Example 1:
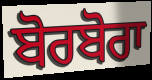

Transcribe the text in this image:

ਬੋਰਬੋਰਾ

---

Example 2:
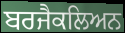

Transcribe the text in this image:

ਬਰਜੈਕਲਿਅਨ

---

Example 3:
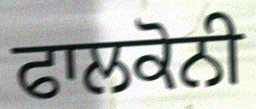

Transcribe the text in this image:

ਫਾਲਕੋਨੀ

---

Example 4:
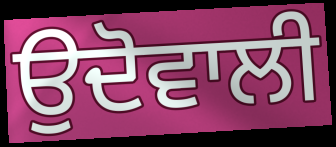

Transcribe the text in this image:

ਉਦੋਵਾਲੀ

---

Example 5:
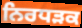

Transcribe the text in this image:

ਨਿਰਧੜਕ